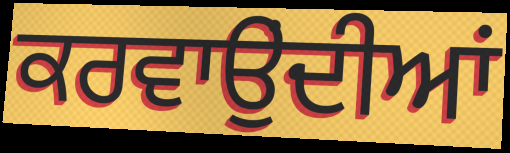
ਕਰਵਾਉੁਂਦੀਆਂ